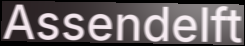
Assendelft